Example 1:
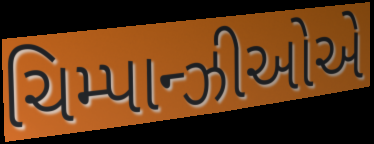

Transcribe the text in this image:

ચિમ્પાન્ઝીઓએ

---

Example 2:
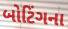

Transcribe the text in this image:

બોટિંગના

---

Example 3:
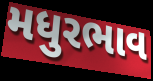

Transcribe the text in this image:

મધુરભાવ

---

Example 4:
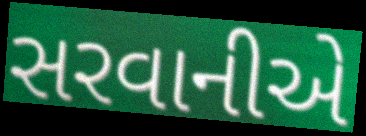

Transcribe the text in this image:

સરવાનીએ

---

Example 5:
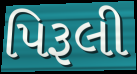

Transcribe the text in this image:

પિરૂલી